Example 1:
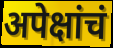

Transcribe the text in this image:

अपेक्षांचं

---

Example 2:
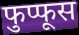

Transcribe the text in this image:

फुप्फूस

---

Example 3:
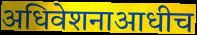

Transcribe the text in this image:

अधिवेशनाआधीच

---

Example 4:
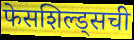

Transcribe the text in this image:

फेसशिल्ड्सची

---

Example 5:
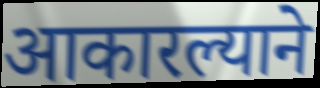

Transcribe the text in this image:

आकारल्याने